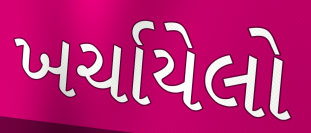
ખર્ચાયેલો